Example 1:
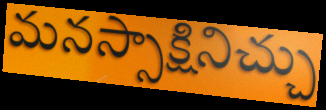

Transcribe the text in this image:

మనస్సాక్షినిచ్చు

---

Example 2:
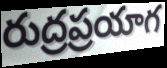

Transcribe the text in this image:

రుద్రప్రయాగ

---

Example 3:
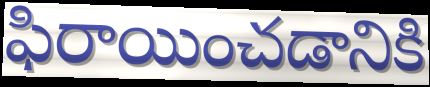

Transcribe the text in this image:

ఫిరాయించడానికి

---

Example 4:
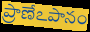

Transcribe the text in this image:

ప్రాణేఽపానం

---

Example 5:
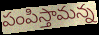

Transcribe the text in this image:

పంపిస్తామన్న